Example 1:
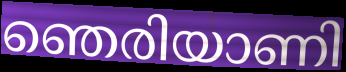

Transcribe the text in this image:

ഞെരിയാണി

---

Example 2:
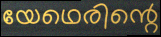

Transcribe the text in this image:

യേഥെരിന്റെ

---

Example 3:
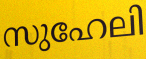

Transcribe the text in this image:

സുഹേലി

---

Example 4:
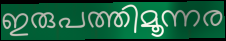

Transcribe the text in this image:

ഇരുപത്തിമൂന്നര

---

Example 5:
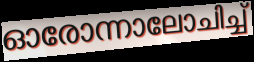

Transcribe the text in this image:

ഓരോന്നാലോചിച്ച്